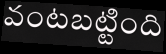
వంటబట్టింది